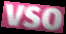
vso